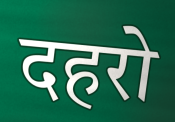
दहरो